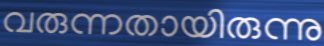
വരുന്നതായിരുന്നു